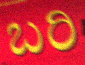
ಬರಿ